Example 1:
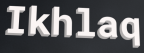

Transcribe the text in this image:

Ikhlaq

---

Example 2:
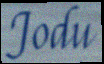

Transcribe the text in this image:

Jodu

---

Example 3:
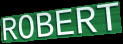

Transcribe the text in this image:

ROBERT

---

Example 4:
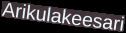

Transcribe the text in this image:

Arikulakeesari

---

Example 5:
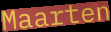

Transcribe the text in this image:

Maarten